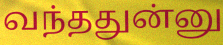
வந்ததுன்னு